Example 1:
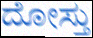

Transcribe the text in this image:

ದೋಸ್ತು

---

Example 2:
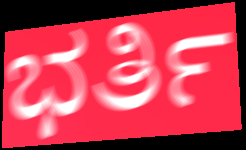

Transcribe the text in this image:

ಭರ್ತಿ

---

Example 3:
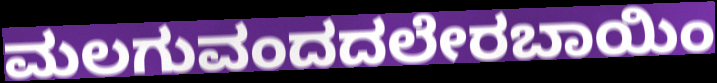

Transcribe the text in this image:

ಮಲಗುವಂದದಲೇರಬಾಯಿಂ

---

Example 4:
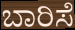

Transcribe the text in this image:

ಬಾರಿಸೆ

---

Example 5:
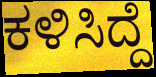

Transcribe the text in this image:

ಕಳಿಸಿದ್ದೆ